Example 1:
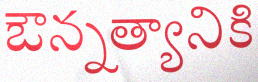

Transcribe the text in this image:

ఔన్నత్యానికి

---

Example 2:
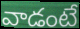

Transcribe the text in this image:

వాడంటే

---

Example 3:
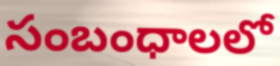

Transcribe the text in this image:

సంబంధాలలో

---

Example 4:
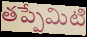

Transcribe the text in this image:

తప్పేమిటి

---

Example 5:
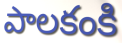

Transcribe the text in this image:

పాలకంకి